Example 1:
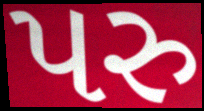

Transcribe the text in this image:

પરુ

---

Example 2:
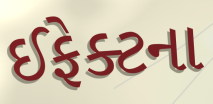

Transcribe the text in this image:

ઈફેક્ટના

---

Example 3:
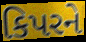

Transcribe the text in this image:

કિપરને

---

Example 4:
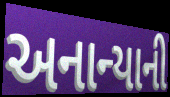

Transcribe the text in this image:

અનાન્યાની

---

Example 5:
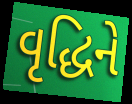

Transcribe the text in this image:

વૃદ્ધિને